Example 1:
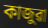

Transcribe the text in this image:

কাজুৱা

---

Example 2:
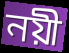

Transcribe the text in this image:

নয়ী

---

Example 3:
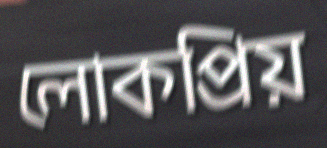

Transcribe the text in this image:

লোকপ্ৰিয়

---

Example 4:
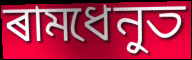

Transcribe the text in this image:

ৰামধেনুত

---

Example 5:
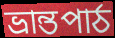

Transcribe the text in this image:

ভ্ৰান্তপাঠ